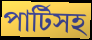
পার্টিসহ